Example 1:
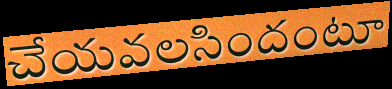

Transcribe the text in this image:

చేయవలసిందంటూ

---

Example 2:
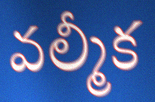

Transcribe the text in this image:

వల్మీక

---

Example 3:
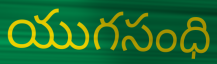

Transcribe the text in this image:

యుగసంధి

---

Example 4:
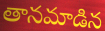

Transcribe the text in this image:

తానమాడిన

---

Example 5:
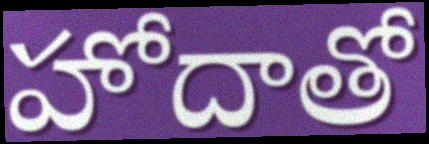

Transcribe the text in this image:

హోదాతో